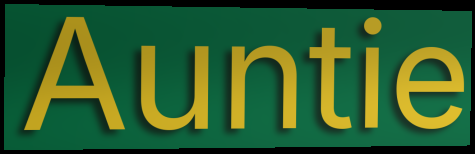
Auntie